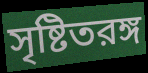
সৃষ্টিতরঙ্গ